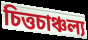
চিত্তচাঞ্চল্য